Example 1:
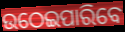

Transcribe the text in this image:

ଉଠେଇପାରିବେ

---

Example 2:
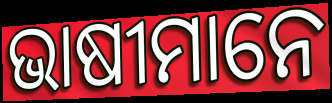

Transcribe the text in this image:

ଭାଷୀମାନେ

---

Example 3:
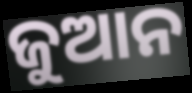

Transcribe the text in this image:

ଜୁଆନ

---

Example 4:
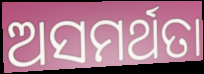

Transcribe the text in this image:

ଅସମର୍ଥତା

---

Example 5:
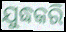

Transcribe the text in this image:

ଯୁଦ୍ଧକରି